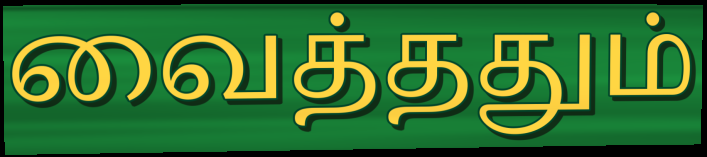
வைத்ததும்